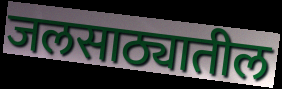
जलसाठ्यातील